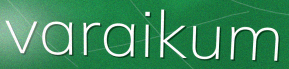
varaikum